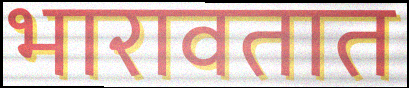
भारावतात